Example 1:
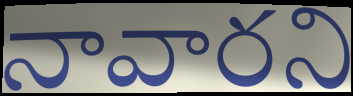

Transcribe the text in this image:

నావారని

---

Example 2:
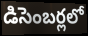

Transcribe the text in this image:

డిసెంబర్లలో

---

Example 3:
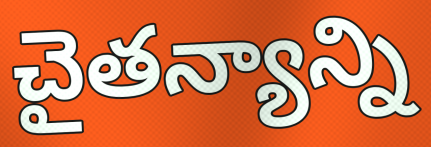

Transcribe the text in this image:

చైతన్యాన్ని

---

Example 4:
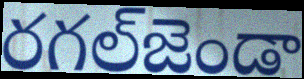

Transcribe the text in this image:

రగల్‌జెండా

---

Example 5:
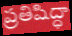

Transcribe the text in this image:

ప్రతిషిద్ధా